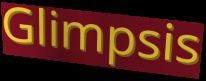
Glimpsis